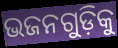
ଭଜନଗୁଡ଼ିକୁ